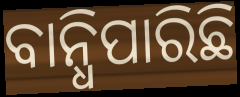
ବାନ୍ଧିପାରିଛି